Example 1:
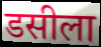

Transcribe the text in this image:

डसीला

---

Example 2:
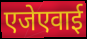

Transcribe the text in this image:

एजेएवाई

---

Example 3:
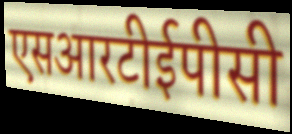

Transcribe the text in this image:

एसआरटीईपीसी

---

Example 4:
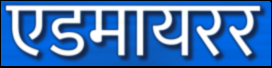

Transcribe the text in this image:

एडमायरर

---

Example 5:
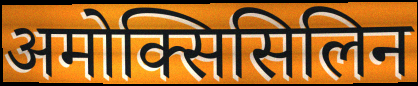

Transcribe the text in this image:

अमोक्सिसिलिन